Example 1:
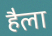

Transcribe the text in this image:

हैला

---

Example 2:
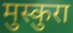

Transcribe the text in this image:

मुस्कुरा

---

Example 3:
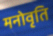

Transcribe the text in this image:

मनोवृति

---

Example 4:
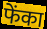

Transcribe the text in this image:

फेंका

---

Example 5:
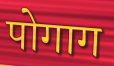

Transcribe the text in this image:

पोगाग